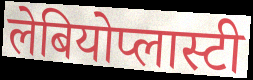
लेबियोप्लास्टी